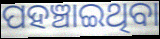
ପହଞ୍ଚାଇଥିବା